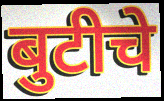
बुटीचे